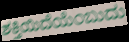
ಶಕ್ತಿಯಿದೆಯೆಂಬುದು